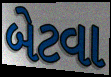
બેટવા